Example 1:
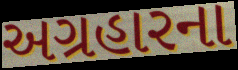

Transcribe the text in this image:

અગ્રહારના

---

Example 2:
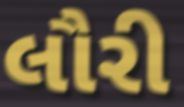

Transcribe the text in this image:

લૌરી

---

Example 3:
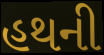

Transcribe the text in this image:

હથની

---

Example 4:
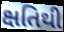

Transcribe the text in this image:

ક્ષતિથી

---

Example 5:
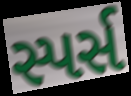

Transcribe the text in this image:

સ્પર્સ